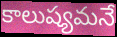
కాలుష్యమనే